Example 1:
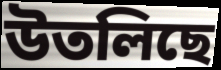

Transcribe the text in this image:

উতলিছে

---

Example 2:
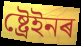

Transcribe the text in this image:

ষ্ট্ৰেইনৰ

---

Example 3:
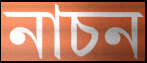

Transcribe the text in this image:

নাচন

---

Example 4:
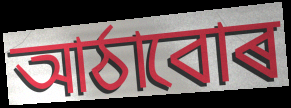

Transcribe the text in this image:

আঠাবোৰ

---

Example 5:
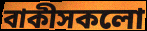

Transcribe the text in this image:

বাকীসকলো